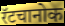
रॅटचानोक